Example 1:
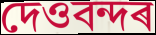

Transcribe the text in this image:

দেওবন্দৰ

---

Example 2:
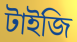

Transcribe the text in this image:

টাইজি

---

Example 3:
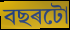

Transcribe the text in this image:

বছৰটো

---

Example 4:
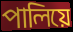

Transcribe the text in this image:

পালিয়ে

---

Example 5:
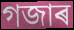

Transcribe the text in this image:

গজাৰ